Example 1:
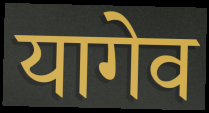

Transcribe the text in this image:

यागेव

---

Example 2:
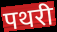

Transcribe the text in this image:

पथरी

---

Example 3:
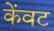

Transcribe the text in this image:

केंवट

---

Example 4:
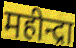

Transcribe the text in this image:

महीन्द्रा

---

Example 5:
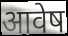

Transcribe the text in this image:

आवेष